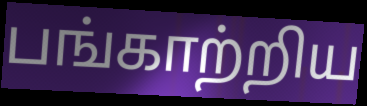
பங்காற்றிய